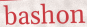
bashon